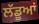
ਲੱਡੂਆਂ